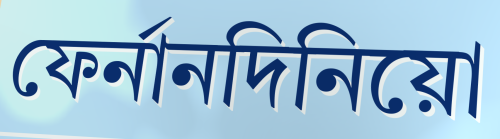
ফের্নানদিনিয়ো